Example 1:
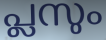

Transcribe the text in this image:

പ്ലസും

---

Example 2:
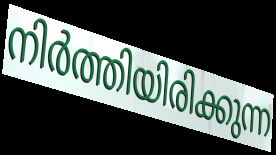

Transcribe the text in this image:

നിർത്തിയിരിക്കുന്ന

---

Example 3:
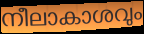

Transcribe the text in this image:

നീലാകാശവും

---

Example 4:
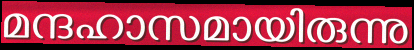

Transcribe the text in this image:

മന്ദഹാസമായിരുന്നു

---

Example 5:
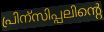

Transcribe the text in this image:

പ്രിന്സിപ്പലിന്റെ